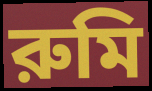
রুমি